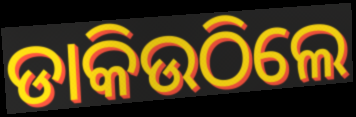
ଡାକିଉଠିଲେ